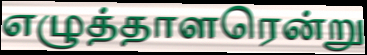
எழுத்தாளரென்று